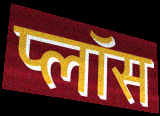
प्लॉस